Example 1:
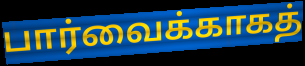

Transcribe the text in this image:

பார்வைக்காகத்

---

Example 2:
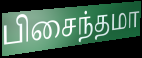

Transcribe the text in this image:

பிசைந்தமா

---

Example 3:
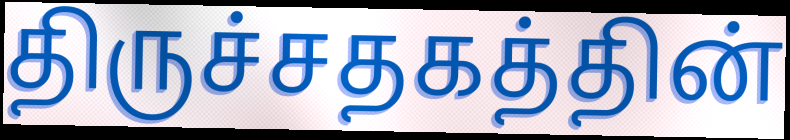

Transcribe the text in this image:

திருச்சதகத்தின்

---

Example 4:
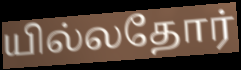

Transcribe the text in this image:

யில்லதோர்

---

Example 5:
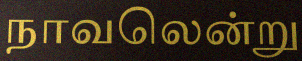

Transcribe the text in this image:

நாவலென்று